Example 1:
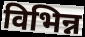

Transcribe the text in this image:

विभिन्न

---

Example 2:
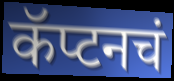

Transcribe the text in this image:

कॅप्टनचं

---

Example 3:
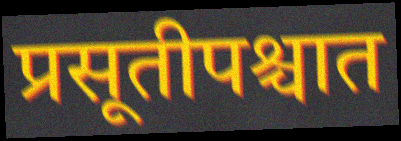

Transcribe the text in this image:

प्रसूतीपश्चात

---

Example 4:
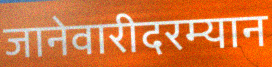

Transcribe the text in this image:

जानेवारीदरम्यान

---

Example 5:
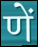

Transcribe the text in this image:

णें